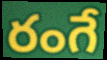
రంగే